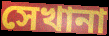
সেখানা